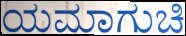
ಯಮಾಗುಚಿ